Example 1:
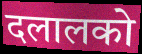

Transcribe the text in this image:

दलालको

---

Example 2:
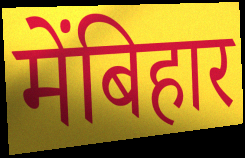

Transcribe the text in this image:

मेंबिहार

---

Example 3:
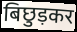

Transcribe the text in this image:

बिछुड़कर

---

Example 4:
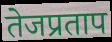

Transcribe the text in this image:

तेजप्रताप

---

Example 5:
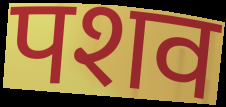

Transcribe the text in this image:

पशव